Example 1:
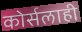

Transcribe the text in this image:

कोर्सलाही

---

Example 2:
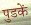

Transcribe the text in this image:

पुडकें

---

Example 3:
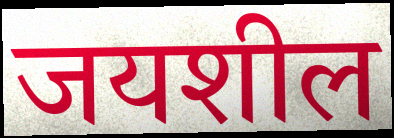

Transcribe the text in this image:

जयशील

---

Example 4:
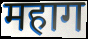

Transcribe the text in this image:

महाग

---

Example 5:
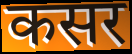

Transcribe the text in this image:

कसर